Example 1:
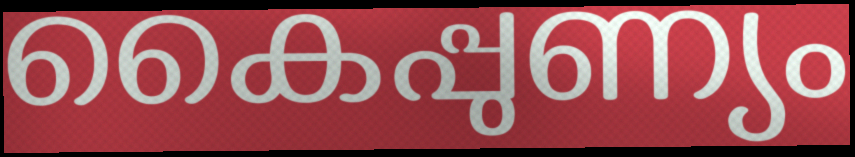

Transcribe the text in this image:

കൈപ്പുണ്യം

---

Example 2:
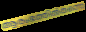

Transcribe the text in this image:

ആരംഭത്തിൽതന്നെ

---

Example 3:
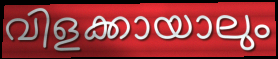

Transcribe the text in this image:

വിളക്കായാലും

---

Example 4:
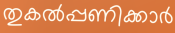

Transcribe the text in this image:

തുകൽപ്പണിക്കാർ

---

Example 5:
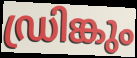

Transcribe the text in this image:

ഡ്രിങ്കും